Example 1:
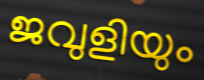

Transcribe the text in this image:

ജവുളിയും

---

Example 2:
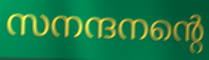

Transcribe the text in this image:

സനന്ദനന്റെ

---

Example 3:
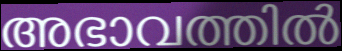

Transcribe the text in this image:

അഭാവത്തിൽ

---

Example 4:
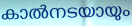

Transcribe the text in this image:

കാൽനടയായും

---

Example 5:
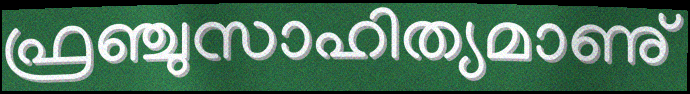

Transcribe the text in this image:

ഫ്രഞ്ചുസാഹിത്യമാണു്